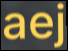
aej